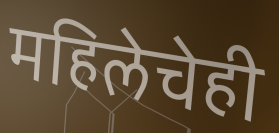
महिलेचेही